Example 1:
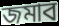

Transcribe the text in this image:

জমাব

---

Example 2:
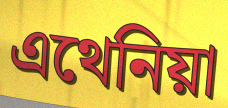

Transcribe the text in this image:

এথেনিয়া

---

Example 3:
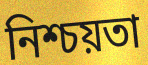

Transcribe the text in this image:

নিশ্চয়তা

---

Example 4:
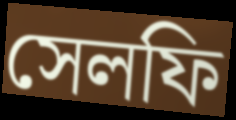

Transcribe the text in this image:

সেলফি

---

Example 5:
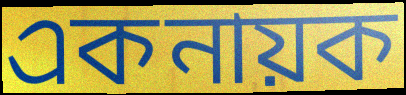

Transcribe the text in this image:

একনায়ক